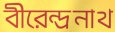
বীরেন্দ্রনাথ